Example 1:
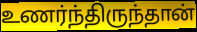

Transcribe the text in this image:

உணர்ந்திருந்தான்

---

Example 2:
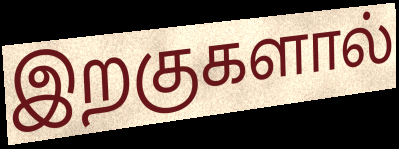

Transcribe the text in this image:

இறகுகளால்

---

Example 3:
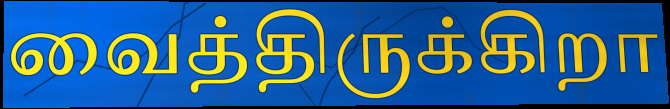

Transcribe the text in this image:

வைத்திருக்கிறா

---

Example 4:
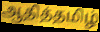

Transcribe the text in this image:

ஆதித்தமிழ்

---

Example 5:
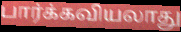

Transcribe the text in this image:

பார்க்கவியலாது